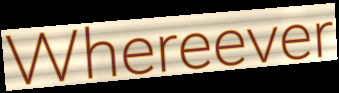
Whereever